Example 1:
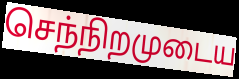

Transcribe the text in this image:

செந்நிறமுடைய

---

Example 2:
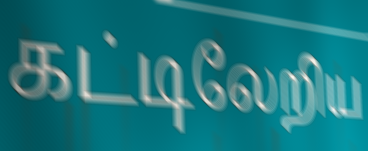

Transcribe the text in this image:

கட்டிலேறிய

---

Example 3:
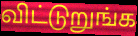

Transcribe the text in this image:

விட்டுறுங்க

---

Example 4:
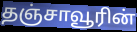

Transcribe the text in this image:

தஞ்சாவூரின்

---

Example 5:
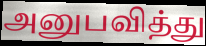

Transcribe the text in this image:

அனுபவித்து